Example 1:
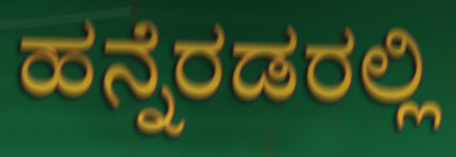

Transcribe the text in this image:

ಹನ್ನೆರಡರಲ್ಲಿ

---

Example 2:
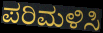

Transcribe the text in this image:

ಪರಿಮಳಿಸಿ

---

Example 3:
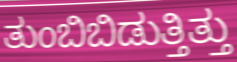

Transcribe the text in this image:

ತುಂಬಿಬಿಡುತ್ತಿತ್ತು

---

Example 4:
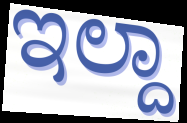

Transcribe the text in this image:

ಇಲ್ದಾ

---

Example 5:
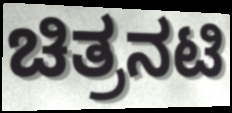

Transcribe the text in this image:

ಚಿತ್ರನಟಿ